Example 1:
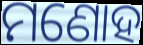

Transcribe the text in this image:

ମଣୋହ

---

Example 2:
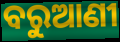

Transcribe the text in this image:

ବରୁଆଣୀ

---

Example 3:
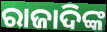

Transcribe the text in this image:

ରାଜାଦିଙ୍କ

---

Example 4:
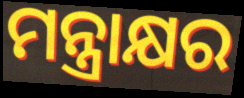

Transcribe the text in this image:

ମନ୍ତ୍ରାକ୍ଷର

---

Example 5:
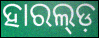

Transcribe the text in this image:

ହାରଲ୍ଡ଼